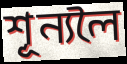
শূন্যলৈ